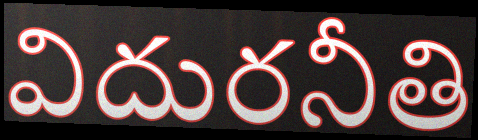
విదురనీతి